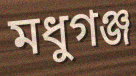
মধুগঞ্জ